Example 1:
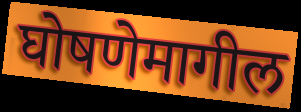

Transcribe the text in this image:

घोषणेमागील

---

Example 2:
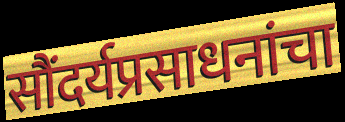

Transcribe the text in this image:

सौंदर्यप्रसाधनांचा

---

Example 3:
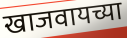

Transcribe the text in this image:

खाजवायच्या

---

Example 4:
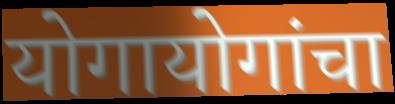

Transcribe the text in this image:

योगायोगांचा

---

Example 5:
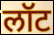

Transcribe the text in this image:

लॉट